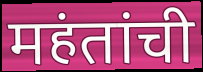
महंतांची